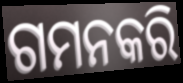
ଗମନକରି